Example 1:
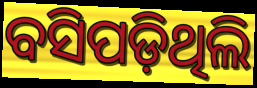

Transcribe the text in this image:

ବସିପଡ଼ିଥିଲି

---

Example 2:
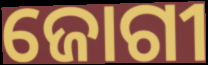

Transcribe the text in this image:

ଜୋଗୀ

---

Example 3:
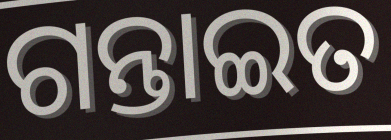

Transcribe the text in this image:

ଗନ୍ତାଇତ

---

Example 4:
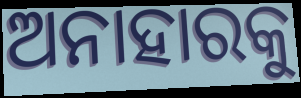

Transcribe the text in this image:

ଅନାହାରକୁ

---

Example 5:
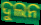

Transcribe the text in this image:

ଦୁଲନ